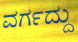
ವರ್ಗದ್ದು